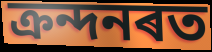
ক্ৰন্দনৰত